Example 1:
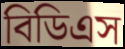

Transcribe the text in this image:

বিডিএস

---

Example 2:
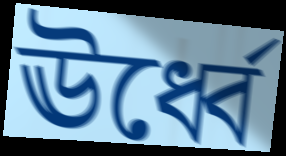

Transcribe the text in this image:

ঊর্ধ্বে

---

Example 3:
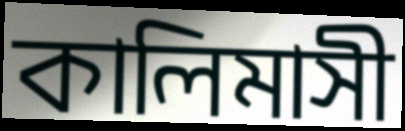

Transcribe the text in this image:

কালিমাসী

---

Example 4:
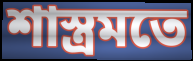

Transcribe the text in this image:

শাস্ত্রমতে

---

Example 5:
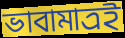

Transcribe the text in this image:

ভাবামাত্রই